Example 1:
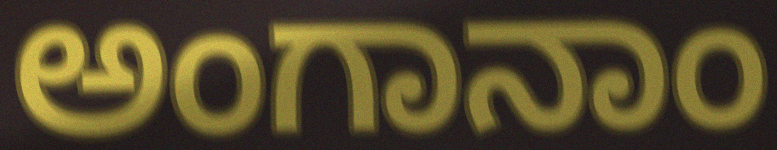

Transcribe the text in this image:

ಅಂಗಾನಾಂ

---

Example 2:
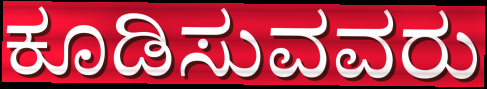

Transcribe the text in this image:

ಕೂಡಿಸುವವರು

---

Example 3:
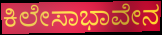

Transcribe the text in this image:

ಕಿಲೇಸಾಭಾವೇನ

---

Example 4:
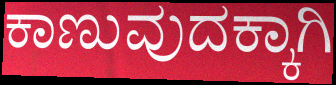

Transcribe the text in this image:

ಕಾಣುವುದಕ್ಕಾಗಿ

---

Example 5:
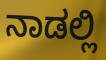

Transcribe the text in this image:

ನಾಡಲ್ಲಿ